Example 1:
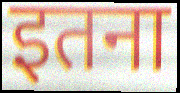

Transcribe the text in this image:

इतना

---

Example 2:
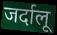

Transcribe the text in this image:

जर्दालू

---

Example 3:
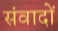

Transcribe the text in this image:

संवादों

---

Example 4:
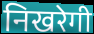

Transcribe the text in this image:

निखरेगी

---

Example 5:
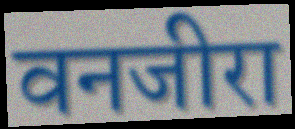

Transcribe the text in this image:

वनजीरा